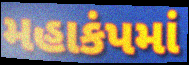
મહાકંપમાં